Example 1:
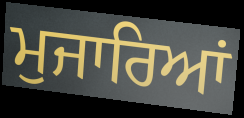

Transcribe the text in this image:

ਮੁਜਾਰਿਆਂ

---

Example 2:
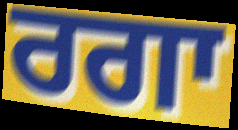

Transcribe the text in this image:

ਰਗਾ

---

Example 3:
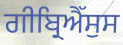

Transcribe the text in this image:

ਗੀਬ੍ਰਿਐੱਸੁਸ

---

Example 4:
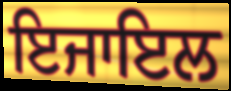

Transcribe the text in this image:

ਇਜਾਇਲ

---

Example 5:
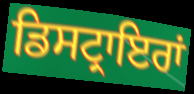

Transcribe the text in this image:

ਡਿਸਟ੍ਰਾਇਰਾਂ